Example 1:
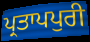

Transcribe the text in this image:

ਪ੍ਰਤਾਪਪੁਰੀ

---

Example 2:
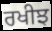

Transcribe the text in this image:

ਰਖੀਝ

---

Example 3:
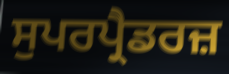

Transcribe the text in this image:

ਸੁਪਰਪ੍ਰੈਡਰਜ਼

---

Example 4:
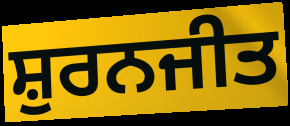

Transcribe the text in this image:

ਸ਼ੁਰਨਜੀਤ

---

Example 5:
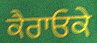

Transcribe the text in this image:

ਕੈਰਾਓਕੇ